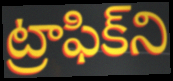
ట్రాఫిక్‌ని